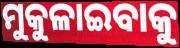
ମୁକୁଳାଇବାକୁ